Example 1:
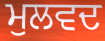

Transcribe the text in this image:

ਮੁਲਵਦ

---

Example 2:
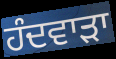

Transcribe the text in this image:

ਹੰਦਵਾੜਾ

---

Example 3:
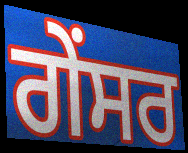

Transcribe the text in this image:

ਗੇਂਸਰ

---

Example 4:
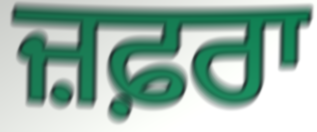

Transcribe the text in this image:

ਜ਼ਫ਼ਰਾ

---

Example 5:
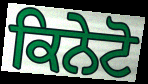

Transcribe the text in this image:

ਕਿਨੇਟੋ